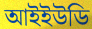
আইইউডি